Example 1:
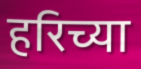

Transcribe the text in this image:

हरिच्या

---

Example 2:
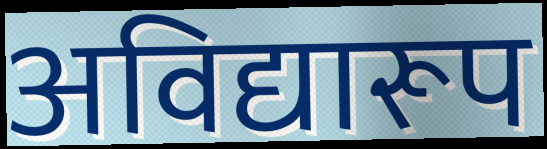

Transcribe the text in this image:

अविद्यारूप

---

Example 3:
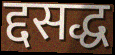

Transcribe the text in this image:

द्दसद्ध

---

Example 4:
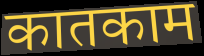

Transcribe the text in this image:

कातकाम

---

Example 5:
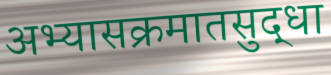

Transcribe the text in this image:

अभ्यासक्रमातसुद्धा